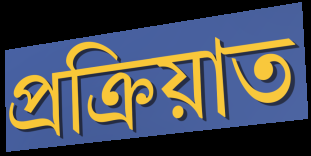
প্ৰক্ৰিয়াত